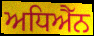
ਅਧਿਐੱਨ